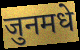
जुनमधे